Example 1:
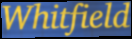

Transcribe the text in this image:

Whitfield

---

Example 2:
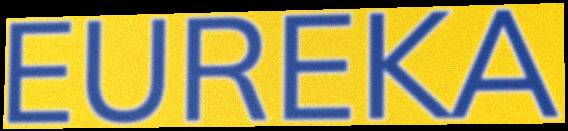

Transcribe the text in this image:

EUREKA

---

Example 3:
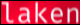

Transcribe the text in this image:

laken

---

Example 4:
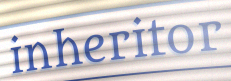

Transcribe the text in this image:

inheritor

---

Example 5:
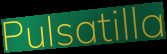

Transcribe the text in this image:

Pulsatilla